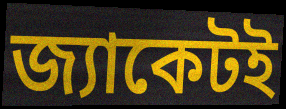
জ্যাকেটই